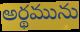
అర్థమును